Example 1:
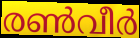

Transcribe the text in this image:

രൺവീർ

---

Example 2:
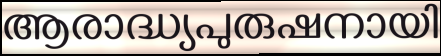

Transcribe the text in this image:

ആരാദ്ധ്യപുരുഷനായി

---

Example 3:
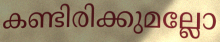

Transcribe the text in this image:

കണ്ടിരിക്കുമല്ലോ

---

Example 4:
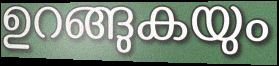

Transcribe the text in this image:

ഉറങ്ങുകയും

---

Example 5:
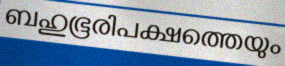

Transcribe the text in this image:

ബഹുഭൂരിപക്ഷത്തെയും